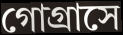
গোগ্রাসে